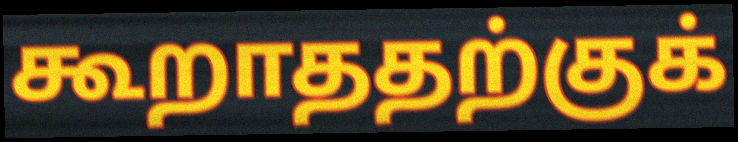
கூறாததற்குக்